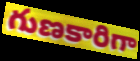
గుణకారిగా